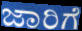
ಜಾರಿಗೆ